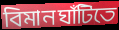
বিমানঘাঁটিতে